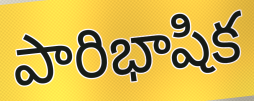
పారిభాషిక